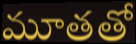
మూతతో